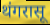
थंगरासू